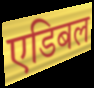
एडिबल